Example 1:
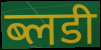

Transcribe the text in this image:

ब्लडी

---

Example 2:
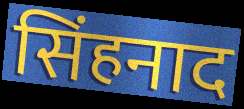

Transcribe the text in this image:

सिंहनाद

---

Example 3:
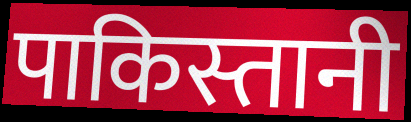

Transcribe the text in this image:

पाकिस्‍तानी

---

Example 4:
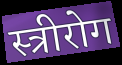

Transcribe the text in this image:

स्त्रीरोग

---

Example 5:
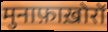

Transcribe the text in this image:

मुनाफ़ाख़ोरों